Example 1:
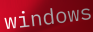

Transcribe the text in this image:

windows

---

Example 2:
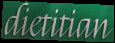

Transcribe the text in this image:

dietitian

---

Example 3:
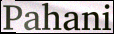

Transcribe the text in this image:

Pahani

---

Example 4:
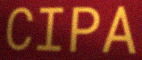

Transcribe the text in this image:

CIPA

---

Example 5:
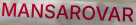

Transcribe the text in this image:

MANSAROVAR